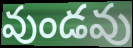
వుండవు